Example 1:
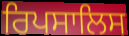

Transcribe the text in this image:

ਰਿਪਸਾਲਿਸ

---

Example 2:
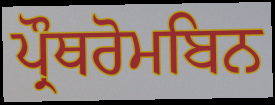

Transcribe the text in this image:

ਪ੍ਰੌਥਰੋਮਬਿਨ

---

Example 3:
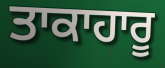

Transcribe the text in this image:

ਤਾਕਾਹਾਰੂ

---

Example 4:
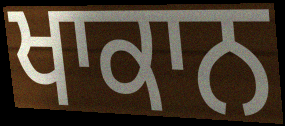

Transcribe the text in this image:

ਖਾਕਾਨ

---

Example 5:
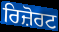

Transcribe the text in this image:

ਰਿਜ਼ੋਰਟ